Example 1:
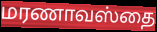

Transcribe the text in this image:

மரணாவஸ்தை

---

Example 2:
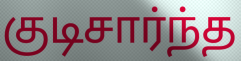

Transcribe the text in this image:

குடிசார்ந்த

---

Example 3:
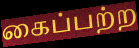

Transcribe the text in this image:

கைப்பற்ற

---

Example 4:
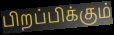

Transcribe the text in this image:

பிறப்பிக்கும்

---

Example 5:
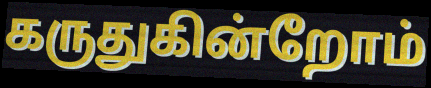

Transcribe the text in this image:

கருதுகின்றோம்